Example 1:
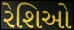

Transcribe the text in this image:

રેશિઓ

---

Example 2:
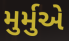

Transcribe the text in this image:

મુર્મુએ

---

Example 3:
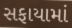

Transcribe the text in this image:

સફાયામાં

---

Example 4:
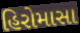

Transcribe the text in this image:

હિરોમાસા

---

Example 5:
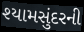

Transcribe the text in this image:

શ્યામસુંદરની